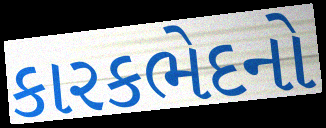
કારકભેદનો